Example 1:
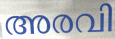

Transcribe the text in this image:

അരവി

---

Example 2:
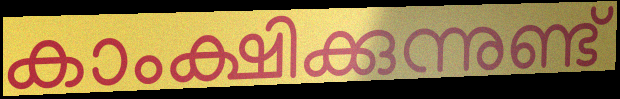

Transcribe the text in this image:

കാംക്ഷിക്കുന്നുണ്ട്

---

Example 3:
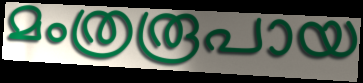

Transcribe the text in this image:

മംത്രരൂപായ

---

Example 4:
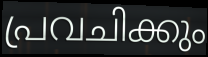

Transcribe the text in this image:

പ്രവചിക്കും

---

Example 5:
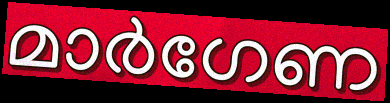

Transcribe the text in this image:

മാർഗേണ